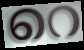
റെ